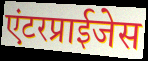
एंटरप्राईजेस